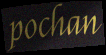
pochan